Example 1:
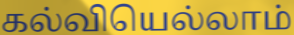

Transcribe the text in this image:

கல்வியெல்லாம்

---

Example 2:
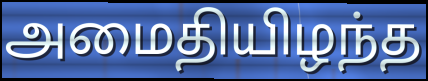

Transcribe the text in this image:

அமைதியிழந்த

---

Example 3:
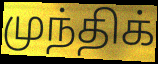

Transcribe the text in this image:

முந்திக்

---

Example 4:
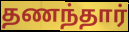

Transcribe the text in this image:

தணந்தார்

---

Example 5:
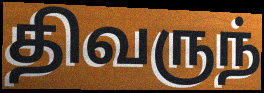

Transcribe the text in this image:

திவருந்